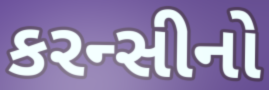
કરન્સીનો